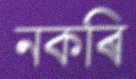
নকৰি